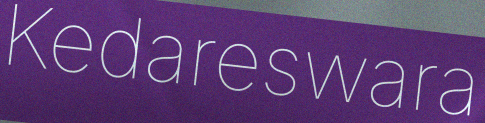
Kedareswara